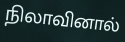
நிலாவினால்